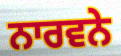
ਨਾਰਵਨੇ